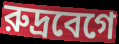
রুদ্রবেগে